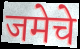
जमेचे